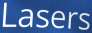
Lasers